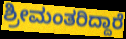
ಶ್ರೀಮಂತರಿದ್ದಾರೆ